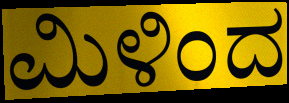
ಮಿಳಿಂದ